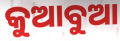
କୁଆବୁଆ